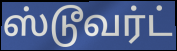
ஸ்டூவர்ட்